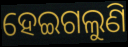
ହେଇଗଲୁଣି